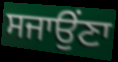
ਸਜਾਉਂਣਾ